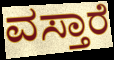
ವಸ್ತಾರೆ